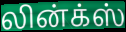
லின்க்ஸ்